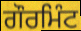
ਗੌਰਮਿੰਟ